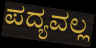
ಪದ್ಯವಲ್ಲ